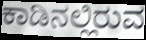
ಕಾಡಿನಲ್ಲಿರುವ